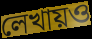
লেখায়ও